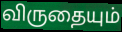
விருதையும்